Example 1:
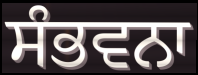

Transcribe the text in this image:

ਸੰਭਵਨਾ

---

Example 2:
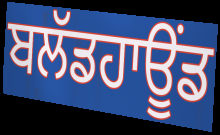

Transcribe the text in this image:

ਬਲੱਡਹਾਊਂਡ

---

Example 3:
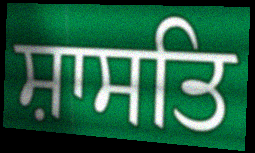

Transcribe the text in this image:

ਸ਼ਾਸਤਿ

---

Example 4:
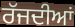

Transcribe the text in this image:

ਰੱਜਦੀਆਂ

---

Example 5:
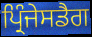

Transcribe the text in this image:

ਪ੍ਰਿੰਜੇਸਡੈਗ